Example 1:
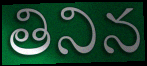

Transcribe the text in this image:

తినిన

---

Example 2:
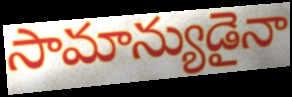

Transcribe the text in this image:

సామాన్యుడైనా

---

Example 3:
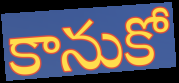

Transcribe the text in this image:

కానుకో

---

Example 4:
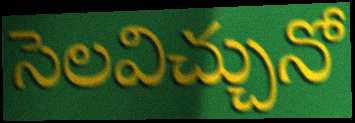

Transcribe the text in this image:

సెలవిచ్చునో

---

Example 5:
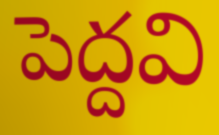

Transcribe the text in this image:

పెద్దవి